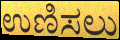
ಉಣಿಸಲು